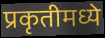
प्रकृतीमध्ये